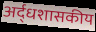
अर्द्धशासकीय